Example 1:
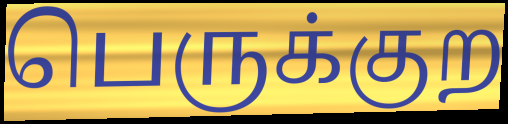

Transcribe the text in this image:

பெருக்குற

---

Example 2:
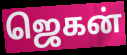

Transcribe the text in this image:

ஜெகன்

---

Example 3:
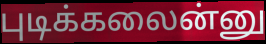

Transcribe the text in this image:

புடிக்கலைன்னு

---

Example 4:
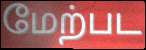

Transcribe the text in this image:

மேற்பட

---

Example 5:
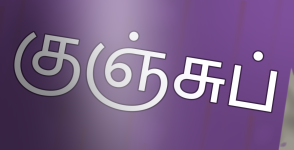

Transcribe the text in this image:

குஞ்சுப்